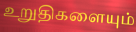
உறுதிகளையும்